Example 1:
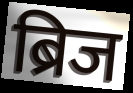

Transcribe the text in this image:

ब्रिज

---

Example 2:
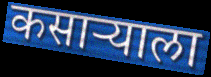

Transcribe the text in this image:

कसाऱ्याला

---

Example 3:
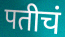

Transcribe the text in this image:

पतीचं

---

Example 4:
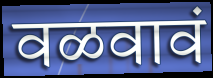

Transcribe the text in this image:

वळवावं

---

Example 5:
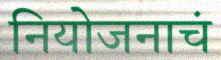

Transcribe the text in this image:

नियोजनाचं